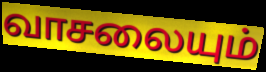
வாசலையும்